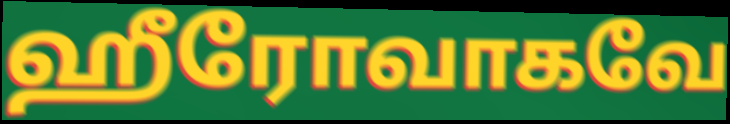
ஹீரோவாகவே